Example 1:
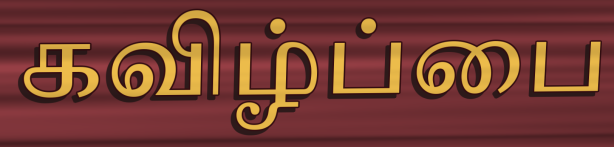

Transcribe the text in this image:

கவிழ்ப்பை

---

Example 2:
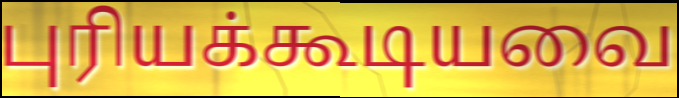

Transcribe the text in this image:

புரியக்கூடியவை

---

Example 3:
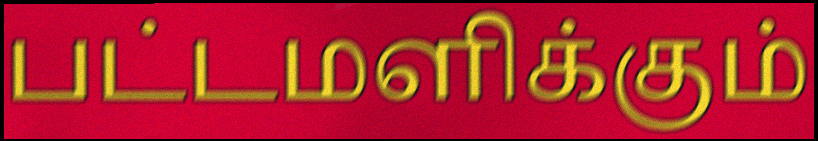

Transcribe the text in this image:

பட்டமளிக்கும்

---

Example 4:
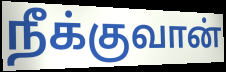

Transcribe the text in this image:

நீக்குவான்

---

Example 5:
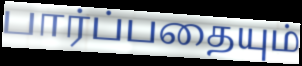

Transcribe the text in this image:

பார்ப்பதையும்